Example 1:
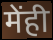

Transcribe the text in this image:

मेंही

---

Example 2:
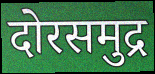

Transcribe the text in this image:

दोरसमुद्र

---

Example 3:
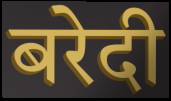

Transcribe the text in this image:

बरेदी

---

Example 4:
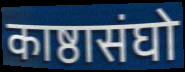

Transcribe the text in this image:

काष्ठासंघो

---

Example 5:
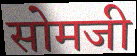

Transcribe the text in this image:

सोमजी